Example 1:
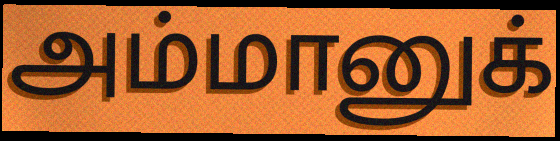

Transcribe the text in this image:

அம்மானுக்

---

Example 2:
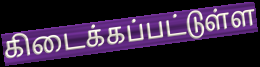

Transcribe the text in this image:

கிடைக்கப்பட்டுள்ள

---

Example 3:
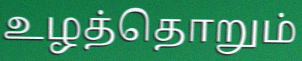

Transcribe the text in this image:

உழத்தொறும்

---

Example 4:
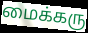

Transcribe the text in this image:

மைக்கரு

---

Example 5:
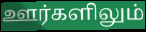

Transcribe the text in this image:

ஊர்களிலும்